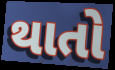
થાતો